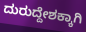
ದುರುದ್ದೇಶಕ್ಕಾಗಿ